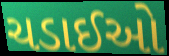
ચડાઈઓ